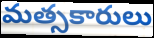
మత్సకారులు